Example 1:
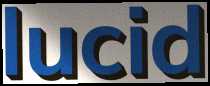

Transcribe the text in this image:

lucid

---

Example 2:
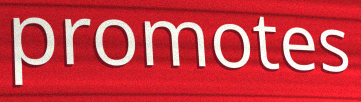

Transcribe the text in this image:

promotes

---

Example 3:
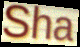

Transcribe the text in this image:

Sha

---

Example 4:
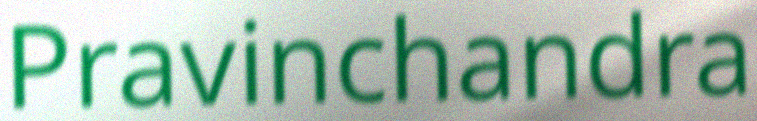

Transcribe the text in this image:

Pravinchandra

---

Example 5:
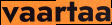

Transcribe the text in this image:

vaartaa